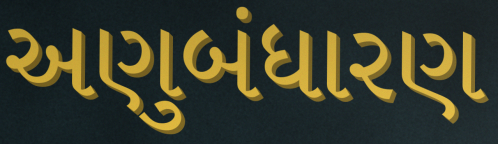
અણુબંધારણ